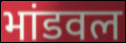
भांडवल